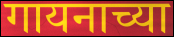
गायनाच्या